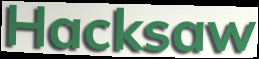
Hacksaw